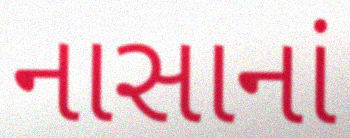
નાસાનાં